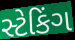
સ્ટેકિંગ